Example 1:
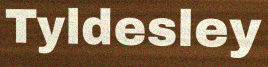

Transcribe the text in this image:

Tyldesley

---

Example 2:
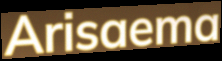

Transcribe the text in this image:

Arisaema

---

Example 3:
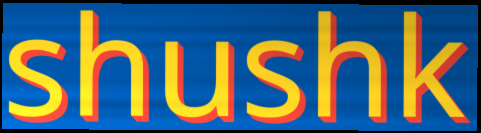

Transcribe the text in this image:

shushk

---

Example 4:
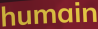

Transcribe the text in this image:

humain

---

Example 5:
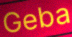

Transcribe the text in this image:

Geba